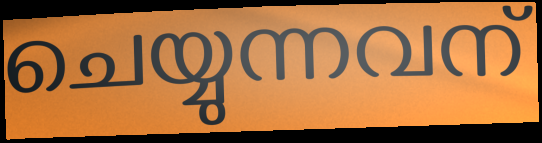
ചെയ്യുന്നവന്